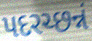
પદરચ્છન્નં